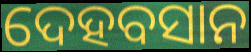
ଦେହବସାନ